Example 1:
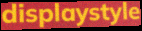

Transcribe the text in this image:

displaystyle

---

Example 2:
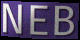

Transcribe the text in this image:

NEB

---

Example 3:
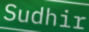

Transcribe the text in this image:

Sudhir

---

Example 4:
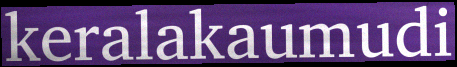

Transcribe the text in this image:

keralakaumudi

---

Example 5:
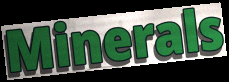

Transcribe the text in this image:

Minerals